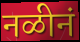
नळीनं